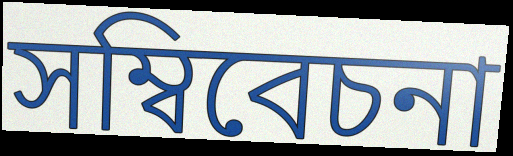
সম্বিবেচনা